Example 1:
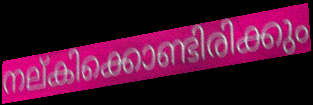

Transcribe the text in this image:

നല്കിക്കൊണ്ടിരിക്കും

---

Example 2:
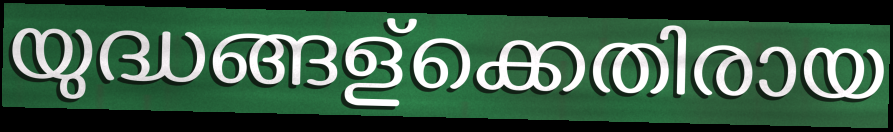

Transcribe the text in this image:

യുദ്ധങ്ങള്ക്കെതിരായ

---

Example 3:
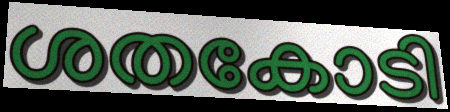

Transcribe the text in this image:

ശതകോടി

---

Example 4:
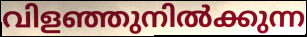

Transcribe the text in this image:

വിളഞ്ഞുനിൽക്കുന്ന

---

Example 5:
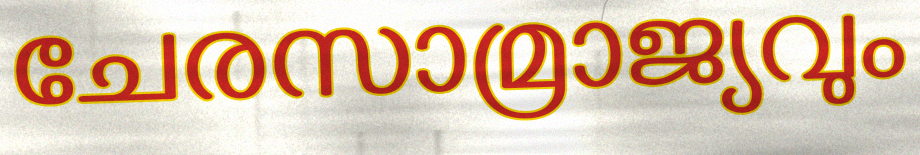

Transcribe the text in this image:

ചേരസാമ്രാജ്യവും